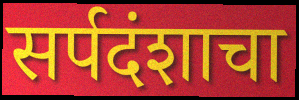
सर्पदंशाचा